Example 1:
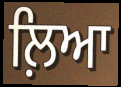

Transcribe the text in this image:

ਲ਼ਿਆ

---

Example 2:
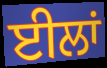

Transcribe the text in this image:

ਈਲਾਂ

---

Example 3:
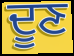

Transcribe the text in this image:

ਦੂਣ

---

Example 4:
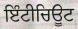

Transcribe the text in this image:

ਇੰਟੀਚਿਊਟ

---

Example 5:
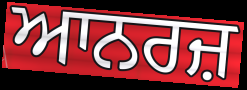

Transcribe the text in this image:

ਆਨਰਜ਼